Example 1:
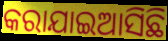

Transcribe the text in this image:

କରାଯାଇଆସିଛି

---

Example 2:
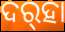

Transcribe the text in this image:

ଦର୍‌ହା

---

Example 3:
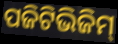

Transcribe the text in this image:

ପଜିଟିଭିଜିମ୍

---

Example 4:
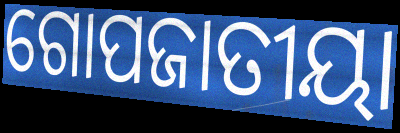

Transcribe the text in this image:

ଗୋପଜାତୀୟା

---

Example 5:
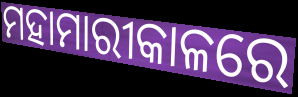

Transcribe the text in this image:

ମହାମାରୀକାଳରେ